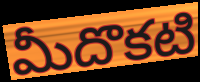
మీదొకటి